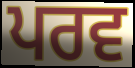
ਪਰਵ